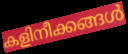
കളിനീക്കങ്ങൾ